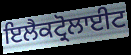
ਇਲੈਕਟ੍ਰੋਲਾਈਟ